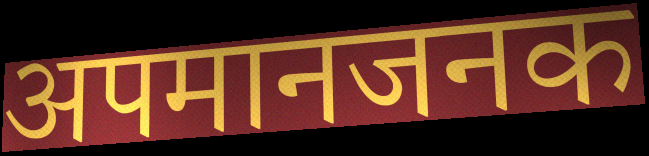
अपमानजनक